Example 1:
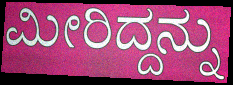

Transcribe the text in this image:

ಮೀರಿದ್ದನ್ನು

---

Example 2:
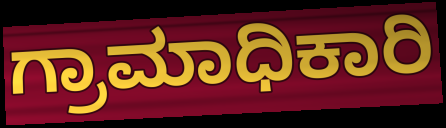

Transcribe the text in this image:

ಗ್ರಾಮಾಧಿಕಾರಿ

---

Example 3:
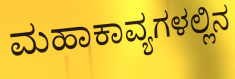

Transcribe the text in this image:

ಮಹಾಕಾವ್ಯಗಳಲ್ಲಿನ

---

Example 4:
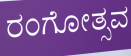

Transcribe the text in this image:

ರಂಗೋತ್ಸವ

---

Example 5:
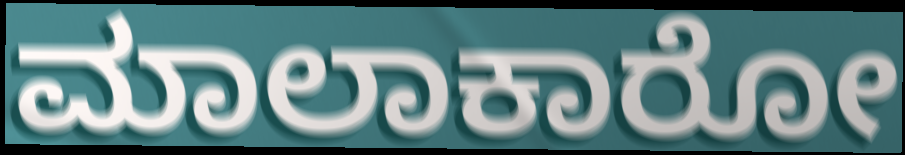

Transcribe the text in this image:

ಮಾಲಾಕಾರೋ